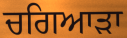
ਚਗਿਆੜਾ